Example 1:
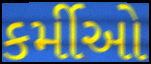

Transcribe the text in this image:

કર્મીઓ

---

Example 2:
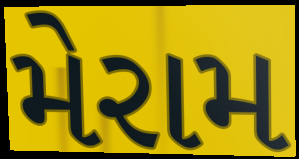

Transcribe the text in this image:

મેરામ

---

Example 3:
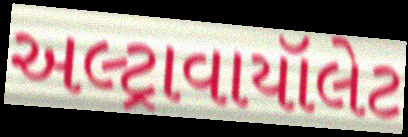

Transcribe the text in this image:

અલ્ટ્રાવાયૉલેટ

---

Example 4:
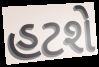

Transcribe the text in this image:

હટશે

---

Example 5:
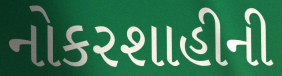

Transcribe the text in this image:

નોકરશાહીની